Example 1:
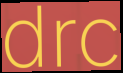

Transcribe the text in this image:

drc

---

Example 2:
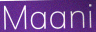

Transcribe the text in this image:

Maani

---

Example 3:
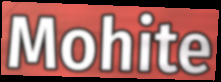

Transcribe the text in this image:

Mohite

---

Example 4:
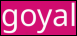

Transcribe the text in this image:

goyal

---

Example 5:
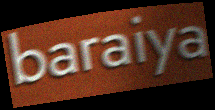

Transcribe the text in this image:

baraiya